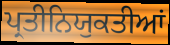
ਪ੍ਰਤੀਨਿਯੁਕਤੀਆਂ